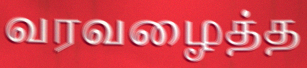
வரவழைத்த